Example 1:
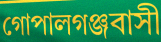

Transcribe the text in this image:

গোপালগঞ্জবাসী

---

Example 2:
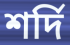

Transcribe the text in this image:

শর্দি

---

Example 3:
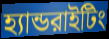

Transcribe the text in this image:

হ্যান্ডরাইটিং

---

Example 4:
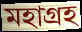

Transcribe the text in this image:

মহাগ্রহ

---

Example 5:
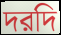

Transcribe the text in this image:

দরদি